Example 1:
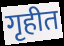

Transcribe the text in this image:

गृहीत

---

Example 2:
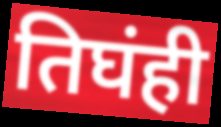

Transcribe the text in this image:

तिघंही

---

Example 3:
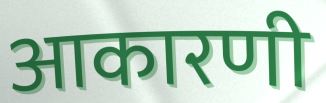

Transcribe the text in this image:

आकारणी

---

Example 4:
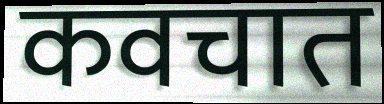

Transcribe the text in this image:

कवचात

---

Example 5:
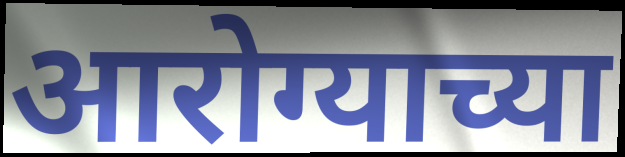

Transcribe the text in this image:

आरोग्याच्या